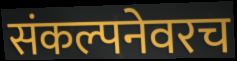
संकल्पनेवरच